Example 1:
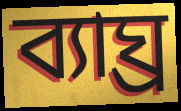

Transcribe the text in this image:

ব্যাঘ্ৰ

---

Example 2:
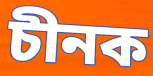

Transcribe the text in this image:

চীনক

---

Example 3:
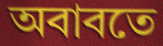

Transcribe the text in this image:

অবাবতে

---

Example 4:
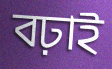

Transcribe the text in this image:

বঢ়াই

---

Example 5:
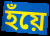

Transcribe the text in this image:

হঁয়ে